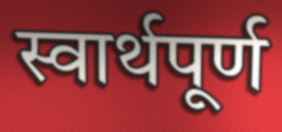
स्वार्थपूर्ण